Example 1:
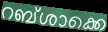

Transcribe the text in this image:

റബ്ശാക്കെ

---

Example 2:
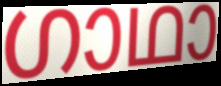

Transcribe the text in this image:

ഗാഥാ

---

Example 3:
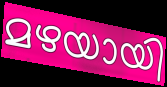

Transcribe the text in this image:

മഴയായി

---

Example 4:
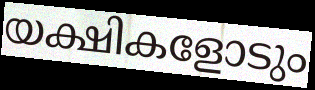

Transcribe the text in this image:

യക്ഷികളോടും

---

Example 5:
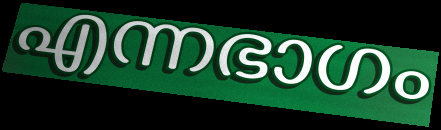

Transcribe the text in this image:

എന്നഭാഗം